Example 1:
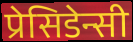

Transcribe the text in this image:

प्रेसिडेन्सी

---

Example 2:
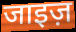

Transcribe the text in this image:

जाइज़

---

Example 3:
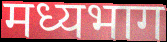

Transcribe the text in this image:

मध्यभाग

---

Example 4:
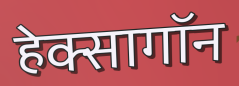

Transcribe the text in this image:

हेक्सागॉन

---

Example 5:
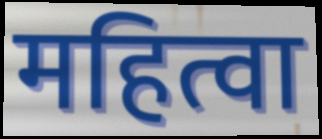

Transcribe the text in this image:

महित्वा